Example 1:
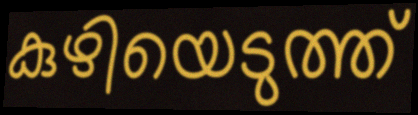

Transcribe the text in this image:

കുഴിയെടുത്ത്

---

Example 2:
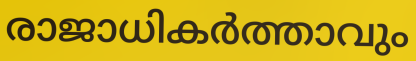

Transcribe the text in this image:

രാജാധികർത്താവും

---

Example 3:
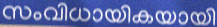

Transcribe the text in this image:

സംവിധായികയായി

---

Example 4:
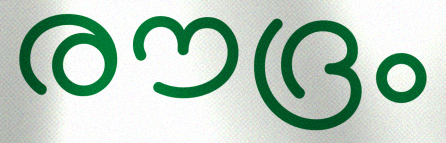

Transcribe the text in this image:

രൗദ്രം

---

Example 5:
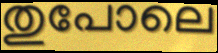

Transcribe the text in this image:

തുപോലെ